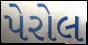
પેરોલ